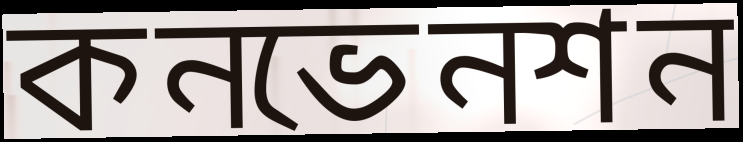
কনভেনশন